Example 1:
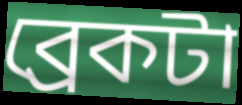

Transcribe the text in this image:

ব্রেকটা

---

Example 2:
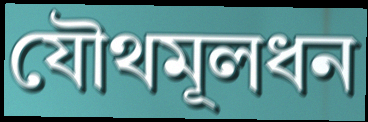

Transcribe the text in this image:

যৌথমূলধন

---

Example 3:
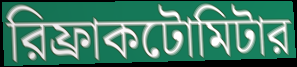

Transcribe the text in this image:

রিফ্রাকটোমিটার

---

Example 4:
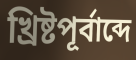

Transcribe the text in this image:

খ্রিষ্টপূর্বাব্দে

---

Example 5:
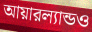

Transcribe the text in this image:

আয়ারল্যান্ডও